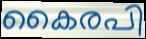
കൈരപി